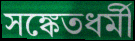
সঙ্কেতধর্মী